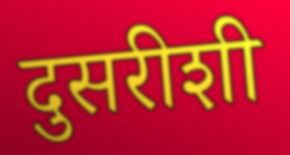
दुसरीशी